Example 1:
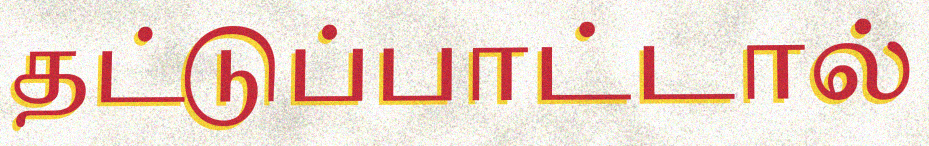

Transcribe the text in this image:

தட்டுப்பாட்டால்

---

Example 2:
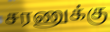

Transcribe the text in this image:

சரணுக்கு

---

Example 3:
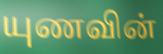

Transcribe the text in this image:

யுணவின்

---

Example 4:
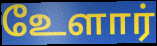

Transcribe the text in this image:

உேளார்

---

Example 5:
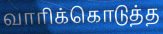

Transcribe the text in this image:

வாரிக்கொடுத்த